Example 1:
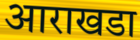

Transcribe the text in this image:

आराखडा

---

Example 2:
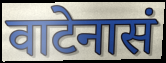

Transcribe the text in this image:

वाटेनासं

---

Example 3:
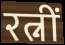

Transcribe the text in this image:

रत्नीं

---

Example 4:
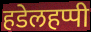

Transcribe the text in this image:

हडेलहप्पी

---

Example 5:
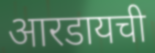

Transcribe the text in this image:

आरडायची